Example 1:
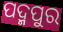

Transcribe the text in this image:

ପଦ୍ମପୁର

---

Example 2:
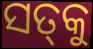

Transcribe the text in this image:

ସତ୍‌କୁ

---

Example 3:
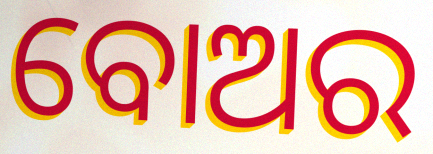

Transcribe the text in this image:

ବୋଅର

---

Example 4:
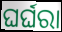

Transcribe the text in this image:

ଘର୍ଘରା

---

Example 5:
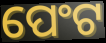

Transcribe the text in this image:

ପେଂଟ